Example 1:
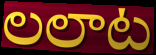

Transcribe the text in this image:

లలాట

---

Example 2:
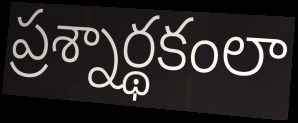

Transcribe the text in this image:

ప్రశ్నార్థకంలా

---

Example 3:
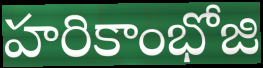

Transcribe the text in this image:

హరికాంభోజి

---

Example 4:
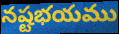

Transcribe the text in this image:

నష్టభయము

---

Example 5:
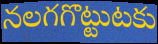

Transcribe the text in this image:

నలగగొట్టుటకు